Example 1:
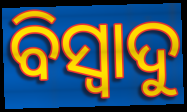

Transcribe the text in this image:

ବିସ୍ୱାଦୁ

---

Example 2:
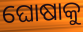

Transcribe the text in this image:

ଘୋଷାକୁ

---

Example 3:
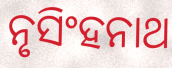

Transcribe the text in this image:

ନୃସିଂହନାଥ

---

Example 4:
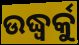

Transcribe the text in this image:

ଉଦ୍ଧ୍ୱର୍କୁ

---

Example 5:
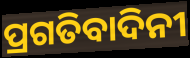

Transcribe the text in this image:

ପ୍ରଗତିବାଦିନୀ